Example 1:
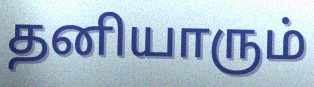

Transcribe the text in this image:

தனியாரும்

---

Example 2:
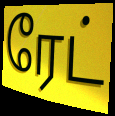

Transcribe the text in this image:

ரேட்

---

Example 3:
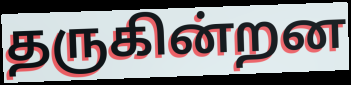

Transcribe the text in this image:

தருகின்றன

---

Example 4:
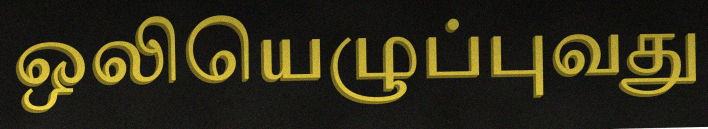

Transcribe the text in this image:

ஒலியெழுப்புவது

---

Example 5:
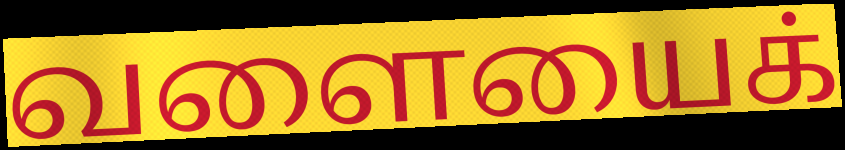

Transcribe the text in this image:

வளையைக்